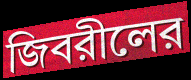
জিবরীলের